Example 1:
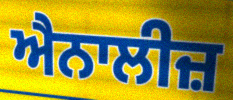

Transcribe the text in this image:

ਐਨਾਲੀਜ਼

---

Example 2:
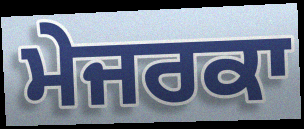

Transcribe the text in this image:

ਮੇਜਰਕਾ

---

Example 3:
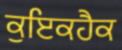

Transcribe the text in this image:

ਕੁਇਕਹੈਕ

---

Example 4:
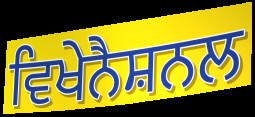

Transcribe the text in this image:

ਵਿਖੇਨੈਸ਼ਨਲ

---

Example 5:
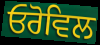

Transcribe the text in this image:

ਓਰੋਵਿਲ